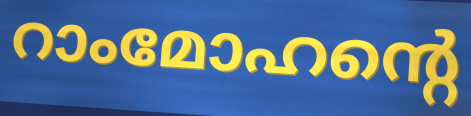
റാംമോഹന്റെ